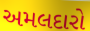
અમલદારો